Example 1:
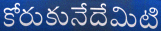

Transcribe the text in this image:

కోరుకునేదేమిటి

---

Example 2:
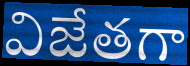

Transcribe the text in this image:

విజేతగా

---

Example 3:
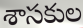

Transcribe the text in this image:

శాసకుల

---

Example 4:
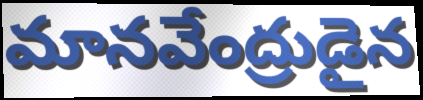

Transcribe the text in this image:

మానవేంద్రుడైన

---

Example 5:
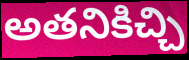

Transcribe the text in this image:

అతనికిచ్చి